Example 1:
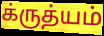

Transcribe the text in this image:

க்ருத்யம்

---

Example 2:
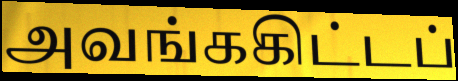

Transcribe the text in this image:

அவங்ககிட்டப்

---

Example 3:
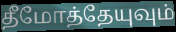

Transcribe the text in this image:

தீமோத்தேயுவும்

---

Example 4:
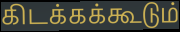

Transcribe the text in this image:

கிடக்கக்கூடும்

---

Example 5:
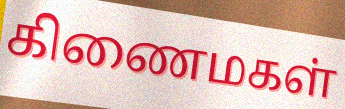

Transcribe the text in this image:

கிணைமகள்